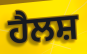
ਹੈਲਸ਼